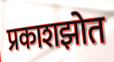
प्रकाशझोत